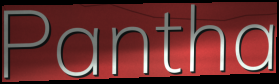
Pantha